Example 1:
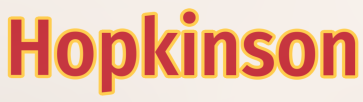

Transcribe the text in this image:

Hopkinson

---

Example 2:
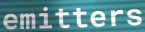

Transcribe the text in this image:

emitters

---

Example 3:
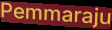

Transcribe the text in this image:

Pemmaraju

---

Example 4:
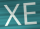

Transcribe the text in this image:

XE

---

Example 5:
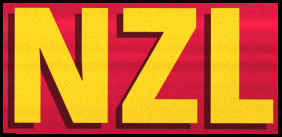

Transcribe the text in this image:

NZL